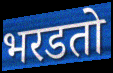
भरडतो